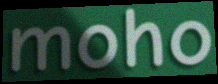
moho